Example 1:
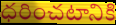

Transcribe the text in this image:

ధరించటానికి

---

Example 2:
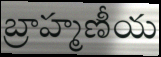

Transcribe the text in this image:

బ్రాహ్మణీయ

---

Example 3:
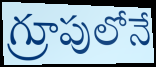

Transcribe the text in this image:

గ్రూపులోనే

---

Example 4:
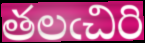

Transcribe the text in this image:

తలఁచిరి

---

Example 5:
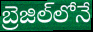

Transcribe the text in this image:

బ్రెజిల్‌లోనే